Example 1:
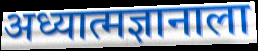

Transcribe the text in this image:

अध्यात्मज्ञानाला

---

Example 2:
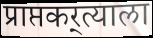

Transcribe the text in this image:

प्राप्तकर्त्याला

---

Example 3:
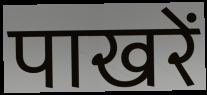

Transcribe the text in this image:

पाखरें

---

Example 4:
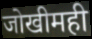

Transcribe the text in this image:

जोखीमही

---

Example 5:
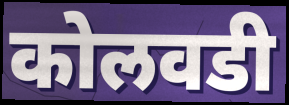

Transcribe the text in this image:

कोलवडी